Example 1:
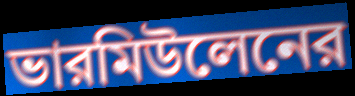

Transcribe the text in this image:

ভারমিউলেনের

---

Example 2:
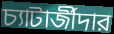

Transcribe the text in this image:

চ্যাটার্জীদার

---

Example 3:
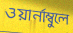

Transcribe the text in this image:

ওয়ার্নাম্বুলে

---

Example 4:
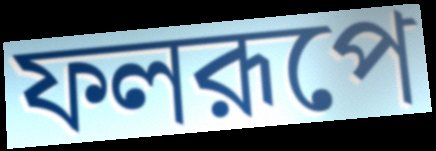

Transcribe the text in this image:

ফলরূপে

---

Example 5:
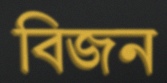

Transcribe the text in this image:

বিজন